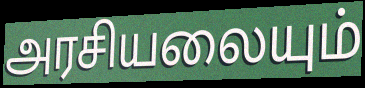
அரசியலையும்